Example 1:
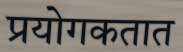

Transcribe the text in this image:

प्रयोगकतात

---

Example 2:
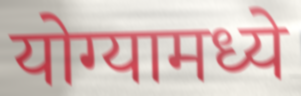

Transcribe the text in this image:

योग्यामध्ये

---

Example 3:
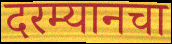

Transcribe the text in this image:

दरम्यानचा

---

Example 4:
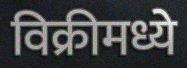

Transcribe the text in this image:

विक्रीमध्ये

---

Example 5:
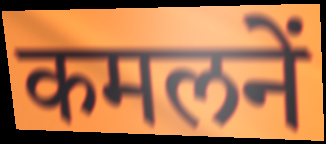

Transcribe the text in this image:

कमलनें